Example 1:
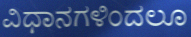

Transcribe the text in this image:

ವಿಧಾನಗಳಿಂದಲೂ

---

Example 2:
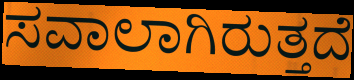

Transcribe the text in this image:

ಸವಾಲಾಗಿರುತ್ತದೆ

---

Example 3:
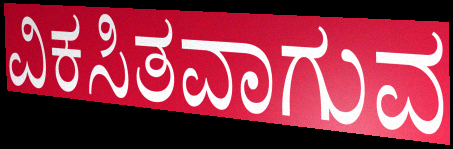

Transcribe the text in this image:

ವಿಕಸಿತವಾಗುವ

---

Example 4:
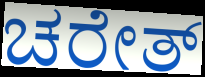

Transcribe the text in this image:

ಚರೇತ್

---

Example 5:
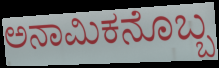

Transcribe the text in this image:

ಅನಾಮಿಕನೊಬ್ಬ